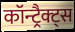
कॉन्‍ट्रैक्‍ट्स